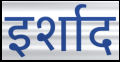
इर्शाद